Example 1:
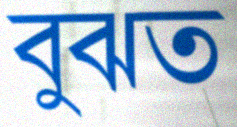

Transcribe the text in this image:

বুঝত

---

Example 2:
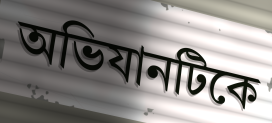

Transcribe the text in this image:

অভিযানটিকে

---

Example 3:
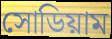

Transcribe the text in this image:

সোডিয়াম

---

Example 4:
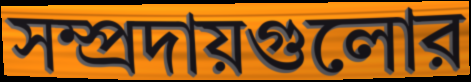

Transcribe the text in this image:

সম্প্রদায়গুলোর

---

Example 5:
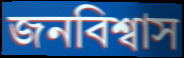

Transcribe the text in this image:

জনবিশ্বাস